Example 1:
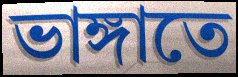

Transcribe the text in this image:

ভাঙ্গাতে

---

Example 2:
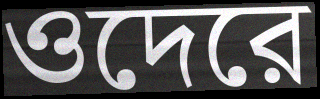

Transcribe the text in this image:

ওদেরে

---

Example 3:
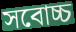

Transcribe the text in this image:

সবোচ্চ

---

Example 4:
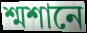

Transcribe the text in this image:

শ্মশানে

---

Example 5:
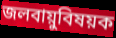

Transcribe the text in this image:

জলবায়ুবিষয়ক